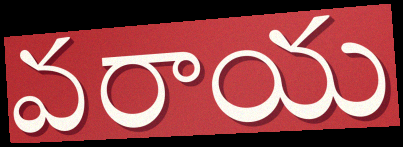
వరాయ